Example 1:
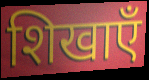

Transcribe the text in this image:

शिखाएँ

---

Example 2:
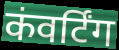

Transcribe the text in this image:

कंवर्टिंग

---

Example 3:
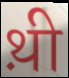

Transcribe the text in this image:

थ़ी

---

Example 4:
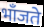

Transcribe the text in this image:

भाँजते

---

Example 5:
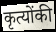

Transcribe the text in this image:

कृत्योंकी